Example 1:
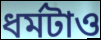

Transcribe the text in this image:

ধর্মটাও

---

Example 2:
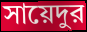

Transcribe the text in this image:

সায়েদুর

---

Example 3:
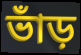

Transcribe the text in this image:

ভাঁড়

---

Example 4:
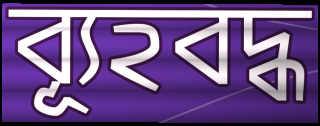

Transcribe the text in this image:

ব্যূহবদ্ধ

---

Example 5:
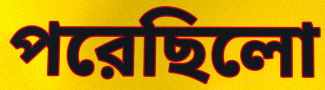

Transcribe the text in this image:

পরেছিলো